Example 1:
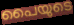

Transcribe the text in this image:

പൈയുടെ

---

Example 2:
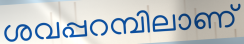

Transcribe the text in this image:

ശവപ്പറമ്പിലാണ്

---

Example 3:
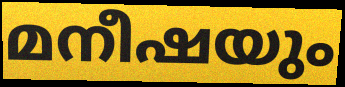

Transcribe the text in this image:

മനീഷയും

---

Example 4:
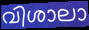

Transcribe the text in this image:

വിശാലാ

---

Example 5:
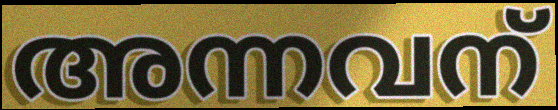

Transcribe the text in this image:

അന്നവന്